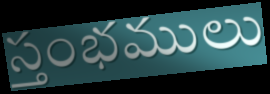
స్తంభములు